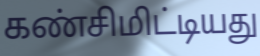
கண்சிமிட்டியது